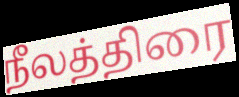
நீலத்திரை